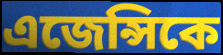
এজেন্সিকে